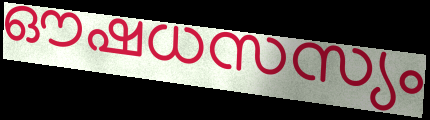
ഔഷധസസ്യം